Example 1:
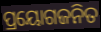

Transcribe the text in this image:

ପ୍ରୟୋଗଜନିତ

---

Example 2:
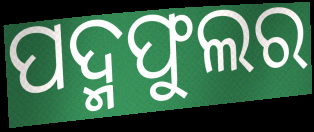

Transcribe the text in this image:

ପଦ୍ମଫୁଲର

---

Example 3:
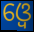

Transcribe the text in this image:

ଓ୍ବେ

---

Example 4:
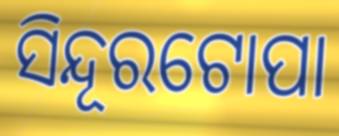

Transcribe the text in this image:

ସିନ୍ଦୂରଟୋପା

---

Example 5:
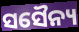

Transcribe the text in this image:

ସସୈନ୍ୟ